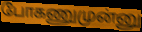
போகணுமுன்னு